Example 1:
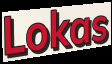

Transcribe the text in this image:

Lokas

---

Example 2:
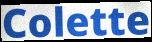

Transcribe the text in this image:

Colette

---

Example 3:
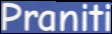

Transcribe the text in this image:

Praniti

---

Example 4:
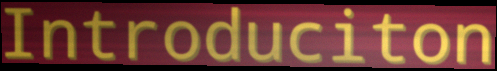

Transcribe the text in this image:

Introduciton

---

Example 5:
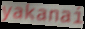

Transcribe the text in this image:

yakanai